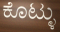
ಕೊಟ್ಳು